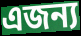
এজন্য